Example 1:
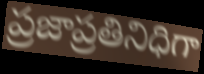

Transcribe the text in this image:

ప్రజాప్రతినిధిగా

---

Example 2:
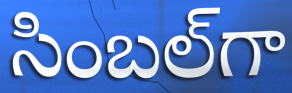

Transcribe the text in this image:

సింబల్‌గా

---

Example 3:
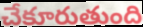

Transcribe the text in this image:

చేకూరుతుంది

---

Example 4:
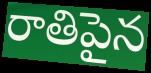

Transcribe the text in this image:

రాతిపైన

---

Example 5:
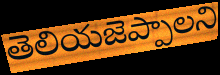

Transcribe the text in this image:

తెలియజెప్పాలని